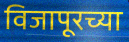
विजापूरच्या